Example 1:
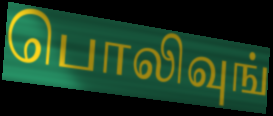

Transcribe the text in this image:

பொலிவுங்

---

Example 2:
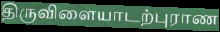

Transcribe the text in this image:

திருவிளையாடற்புராண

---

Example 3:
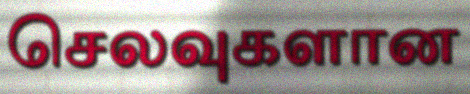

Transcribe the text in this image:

செலவுகளான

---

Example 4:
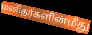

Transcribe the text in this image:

மனிதர்களின்மீது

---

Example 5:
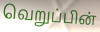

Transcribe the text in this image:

வெறுப்பின்